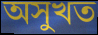
অসুখত